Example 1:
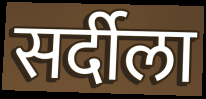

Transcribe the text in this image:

सर्दीला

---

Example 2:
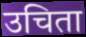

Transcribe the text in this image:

उचिता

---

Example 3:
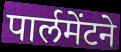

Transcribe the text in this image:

पार्लमेंटने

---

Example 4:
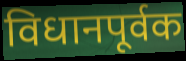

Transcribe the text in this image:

विधानपूर्वक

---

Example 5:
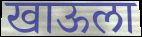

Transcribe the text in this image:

खाऊला